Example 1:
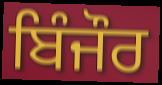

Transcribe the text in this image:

ਬਿੰਜੌਰ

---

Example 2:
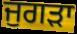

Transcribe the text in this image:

ਜੁਗੜਾ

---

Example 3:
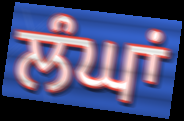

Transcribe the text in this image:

ਲੰਘਾਂ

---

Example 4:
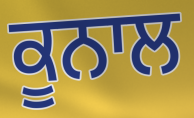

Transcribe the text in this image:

ਕੂਨਾਲ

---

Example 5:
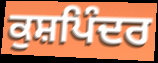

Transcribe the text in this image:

ਕੁਸ਼ਪਿੰਦਰ